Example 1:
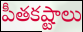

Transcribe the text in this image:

పీతకష్టాలు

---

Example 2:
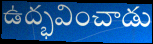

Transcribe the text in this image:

ఉద్భవించాడు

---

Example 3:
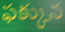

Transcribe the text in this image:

ఫక్కున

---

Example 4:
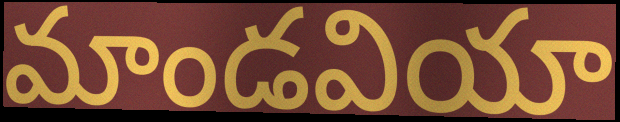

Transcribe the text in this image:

మాండవియా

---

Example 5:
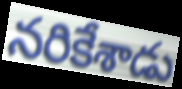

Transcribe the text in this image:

నరికేశాడు